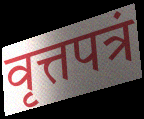
वृत्तपत्रं